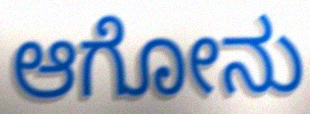
ಆಗೋನು